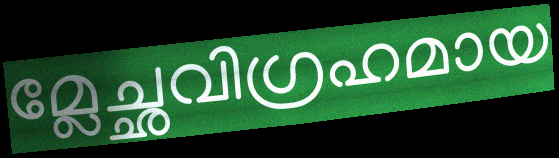
മ്ലേച്ഛവിഗ്രഹമായ